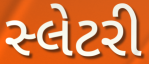
સ્લેટરી